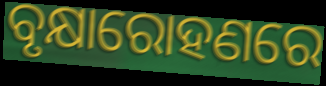
ବୃକ୍ଷାରୋହଣରେ